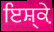
ਇਸ਼੍ਕ਼ੇ